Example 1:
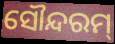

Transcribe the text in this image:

ସୌନ୍ଦରମ୍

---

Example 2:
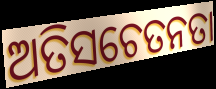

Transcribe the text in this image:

ଅତିସଚେତନତା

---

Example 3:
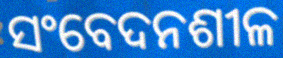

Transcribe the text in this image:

ସଂବେଦନଶୀଳ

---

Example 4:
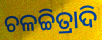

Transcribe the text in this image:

ଚଳଚ୍ଚିତ୍ରାଦି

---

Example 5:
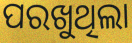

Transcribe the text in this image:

ପରଖୁଥିଲା